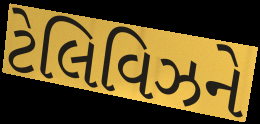
ટેલિવિઝને